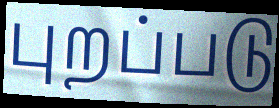
புறப்படு